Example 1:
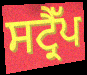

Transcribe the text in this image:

ਸਟ੍ਰੈੱਪ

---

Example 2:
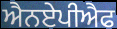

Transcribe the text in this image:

ਐਨਏਪੀਐਫ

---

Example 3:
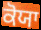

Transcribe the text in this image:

ਕੋਯਾ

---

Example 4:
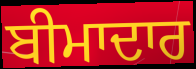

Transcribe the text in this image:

ਬੀਮਾਦਾਰ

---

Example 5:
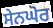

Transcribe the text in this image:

ਸੇਨਘੋਰ